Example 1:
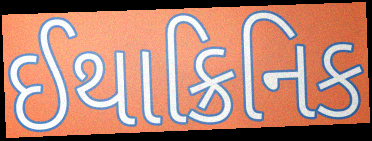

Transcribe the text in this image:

ઈથાક્રિનિક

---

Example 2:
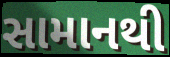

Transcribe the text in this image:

સામાનથી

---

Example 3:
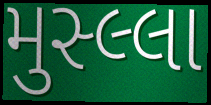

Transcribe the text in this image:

મુસ્લ્લા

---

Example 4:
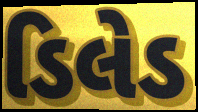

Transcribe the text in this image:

ડિલેડ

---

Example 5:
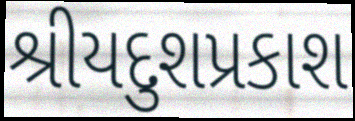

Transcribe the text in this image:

શ્રીયદુશપ્રકાશ